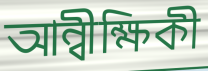
আন্বীক্ষিকী